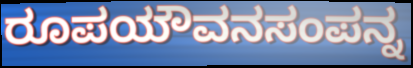
ರೂಪಯೌವನಸಂಪನ್ನ